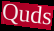
Quds